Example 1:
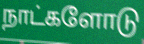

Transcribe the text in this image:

நாட்களோடு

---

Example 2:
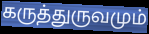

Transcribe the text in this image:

கருத்துருவமும்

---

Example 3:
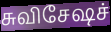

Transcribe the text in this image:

சுவிசேஷச்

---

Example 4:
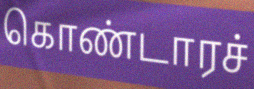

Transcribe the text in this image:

கொண்டாரச்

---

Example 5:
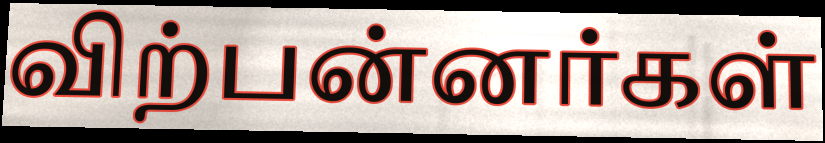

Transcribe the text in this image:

விற்பன்னர்கள்